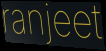
ranjeet